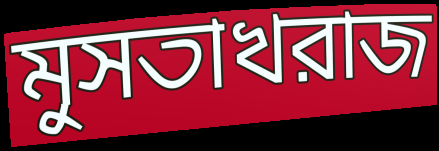
মুসতাখরাজ